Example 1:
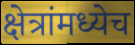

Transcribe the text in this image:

क्षेत्रांमध्येच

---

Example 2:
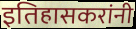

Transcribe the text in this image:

इतिहासकरांनी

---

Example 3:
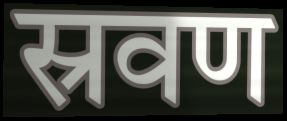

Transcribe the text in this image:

स्रवण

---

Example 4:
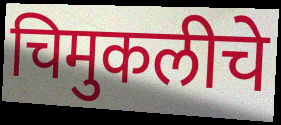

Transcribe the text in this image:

चिमुकलीचे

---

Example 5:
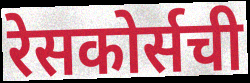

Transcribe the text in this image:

रेसकोर्सची